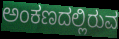
ಅಂಕಣದಲ್ಲಿರುವ